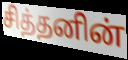
சித்தனின்